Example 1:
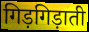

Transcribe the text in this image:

गिड़गिड़ाती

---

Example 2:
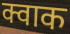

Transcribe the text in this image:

क्वाक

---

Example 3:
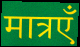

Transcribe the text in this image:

मात्रएँ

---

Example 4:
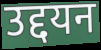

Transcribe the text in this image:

उद्दयन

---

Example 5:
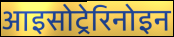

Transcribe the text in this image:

आइसोट्रेरिनोइन